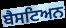
ਬੈਸਟਿਅਨ